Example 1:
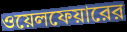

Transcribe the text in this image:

ওয়েলফেয়ারের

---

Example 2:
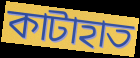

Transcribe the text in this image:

কাটাহাত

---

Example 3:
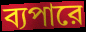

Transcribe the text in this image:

ব্যপারে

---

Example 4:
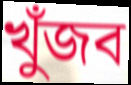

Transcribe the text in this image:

খুঁজব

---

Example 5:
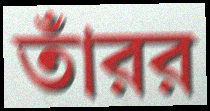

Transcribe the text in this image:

তাঁরর